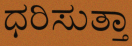
ಧರಿಸುತ್ತಾ